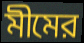
মীমের